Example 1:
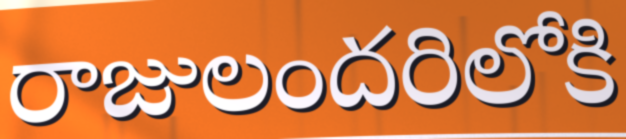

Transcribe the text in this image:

రాజులందరిలోకి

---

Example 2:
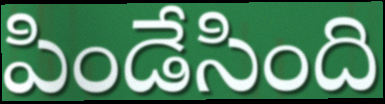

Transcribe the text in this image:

పిండేసింది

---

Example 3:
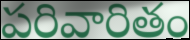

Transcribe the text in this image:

పరివారితం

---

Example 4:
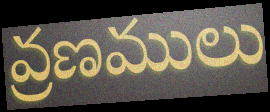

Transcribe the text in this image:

వ్రణములు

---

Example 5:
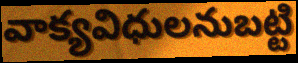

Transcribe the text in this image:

వాక్యవిధులనుబట్టి